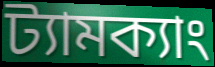
ট্যামক্যাং